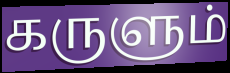
கருளும்